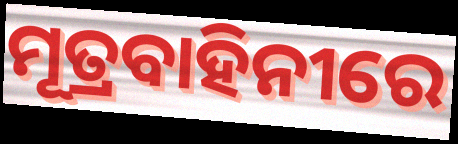
ମୂତ୍ରବାହିନୀରେ